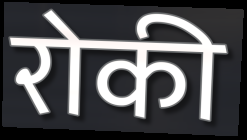
रोकी